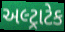
અલ્ટ્રાટેક